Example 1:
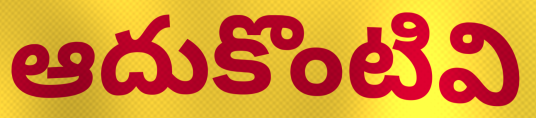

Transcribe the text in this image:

ఆదుకొంటివి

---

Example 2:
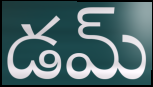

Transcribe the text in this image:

డమ్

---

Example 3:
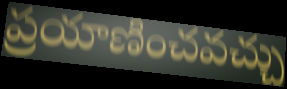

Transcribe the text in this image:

ప్రయాణించవచ్చు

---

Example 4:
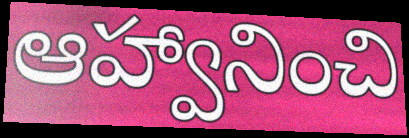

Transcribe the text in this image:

ఆహ్వానించి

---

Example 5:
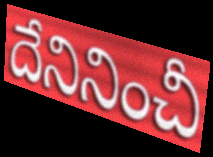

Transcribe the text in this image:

దేనినించీ